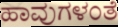
ಹಾವುಗಳಂತೆ